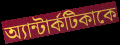
অ্যান্টার্কটিকাকে